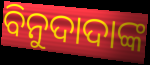
ବିନୁଦାଦାଙ୍କ